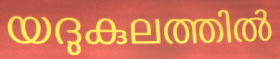
യദുകുലത്തിൽ